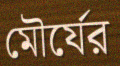
মৌর্যের